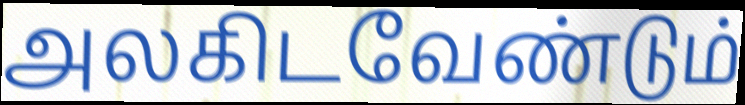
அலகிடவேண்டும்